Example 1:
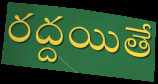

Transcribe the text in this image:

రద్దయితే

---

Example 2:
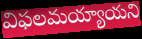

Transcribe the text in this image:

విఫలమయ్యాయని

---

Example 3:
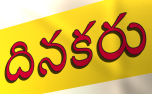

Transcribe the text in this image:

దినకరు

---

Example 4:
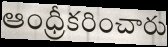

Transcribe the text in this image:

ఆంధ్రీకరించారు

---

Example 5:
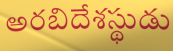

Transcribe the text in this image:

అరబిదేశస్థుడు